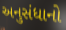
અનુસંધાનો